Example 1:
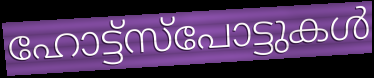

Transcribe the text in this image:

ഹോട്ട്സ്പോട്ടുകൾ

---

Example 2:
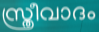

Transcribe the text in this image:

സ്ത്രീവാദം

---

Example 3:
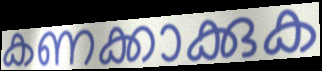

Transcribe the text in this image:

കണക്കാക്കുക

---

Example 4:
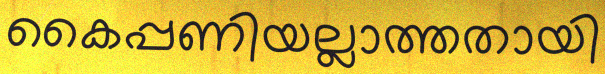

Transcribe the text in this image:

കൈപ്പണിയല്ലാത്തതായി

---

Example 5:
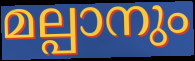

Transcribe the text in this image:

മല്പാനും